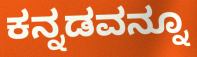
ಕನ್ನಡವನ್ನೂ